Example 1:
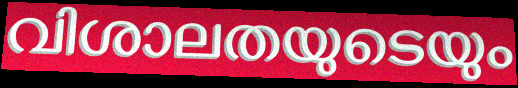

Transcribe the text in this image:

വിശാലതയുടെയും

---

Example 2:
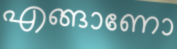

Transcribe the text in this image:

എങ്ങാണോ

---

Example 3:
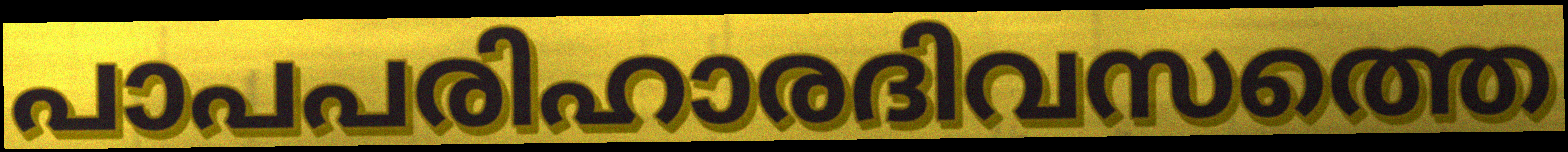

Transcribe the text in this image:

പാപപരിഹാരദിവസത്തെ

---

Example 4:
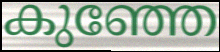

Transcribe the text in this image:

കുഞ്ഞേ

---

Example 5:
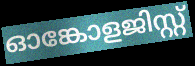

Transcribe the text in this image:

ഓങ്കോളജിസ്റ്റ്